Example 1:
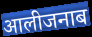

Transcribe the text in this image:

आलीजनाब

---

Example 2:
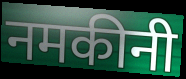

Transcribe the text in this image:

नमकीनी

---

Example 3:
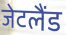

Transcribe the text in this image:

जेटलैंड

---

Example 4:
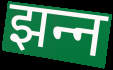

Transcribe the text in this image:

झन्न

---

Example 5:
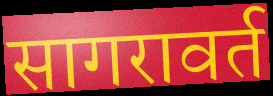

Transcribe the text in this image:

सागरावर्त